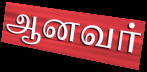
ஆனவர்